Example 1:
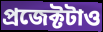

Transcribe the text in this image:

প্রজেক্টটাও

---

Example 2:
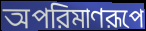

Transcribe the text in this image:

অপরিমাণরূপে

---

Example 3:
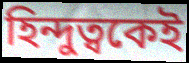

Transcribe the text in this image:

হিন্দুত্বকেই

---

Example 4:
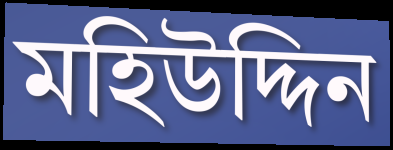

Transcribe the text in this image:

মহিউদ্দিন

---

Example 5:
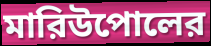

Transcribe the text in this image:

মারিউপোলের